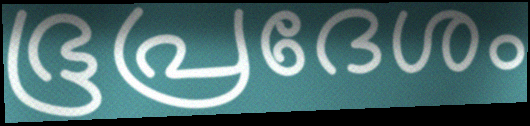
ഭൂപ്രദേശം